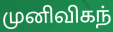
முனிவிகந்